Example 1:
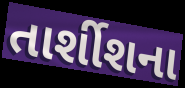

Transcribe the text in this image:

તાર્શીશના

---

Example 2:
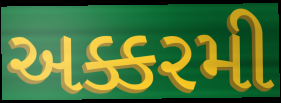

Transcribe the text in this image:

અક્કરમી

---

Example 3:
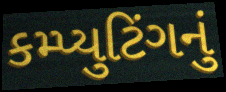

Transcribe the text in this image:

કમ્પ્યુટિંગનું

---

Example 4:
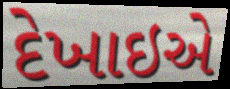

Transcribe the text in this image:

દેખાઇએ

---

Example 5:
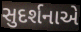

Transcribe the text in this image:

સુદર્શનાએ